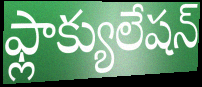
ఫ్లాక్యులేషన్